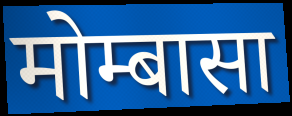
मोम्बासा